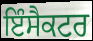
ਇੰਸੈਕਟਰ